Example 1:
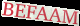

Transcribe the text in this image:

BEFAAM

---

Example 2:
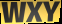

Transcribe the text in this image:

WXY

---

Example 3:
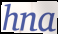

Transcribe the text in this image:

hna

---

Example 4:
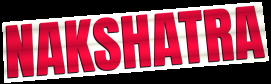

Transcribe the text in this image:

NAKSHATRA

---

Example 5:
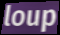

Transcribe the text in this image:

loup